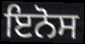
ਇਨੋਸ